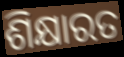
ଶିକ୍ଷାରତ